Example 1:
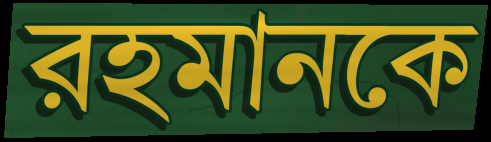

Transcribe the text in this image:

রহমানকে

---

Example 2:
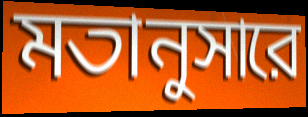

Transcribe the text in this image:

মতানুসারে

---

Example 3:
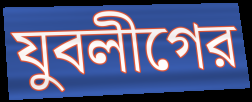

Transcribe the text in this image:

যুবলীগের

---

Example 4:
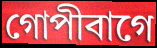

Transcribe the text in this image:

গোপীবাগে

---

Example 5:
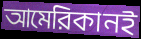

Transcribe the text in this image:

আমেরিকানই